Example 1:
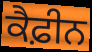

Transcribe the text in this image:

ਕੈਫ਼ੀਨ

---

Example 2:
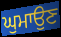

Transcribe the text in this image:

ਘੁਮਾਉਣ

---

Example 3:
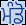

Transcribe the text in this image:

ਮੰਡੋ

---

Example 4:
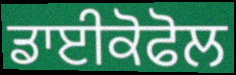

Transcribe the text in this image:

ਡਾਈਕੋਫੋਲ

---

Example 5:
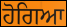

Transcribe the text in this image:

ਹੋਗਿਆ